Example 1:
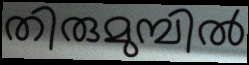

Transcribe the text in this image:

തിരുമുമ്പിൽ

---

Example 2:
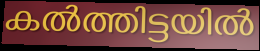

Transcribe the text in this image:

കൽത്തിട്ടയിൽ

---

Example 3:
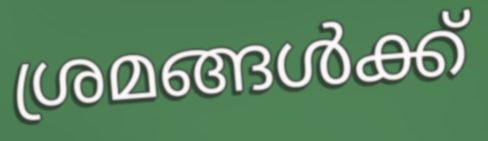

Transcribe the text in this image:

ശ്രമങ്ങൾക്ക്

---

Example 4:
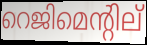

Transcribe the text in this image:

റെജിമെന്റില്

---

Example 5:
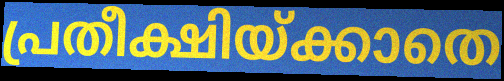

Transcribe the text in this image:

പ്രതീക്ഷിയ്ക്കാതെ